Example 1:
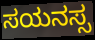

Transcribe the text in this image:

ಸಯನಸ್ಸ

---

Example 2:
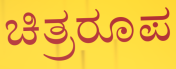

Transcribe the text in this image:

ಚಿತ್ರರೂಪ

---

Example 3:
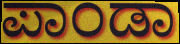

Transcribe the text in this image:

ಪಾಂಡಾ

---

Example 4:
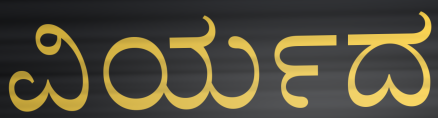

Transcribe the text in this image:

ವಿರ್ಯದ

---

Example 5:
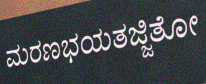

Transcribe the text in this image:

ಮರಣಭಯತಜ್ಜಿತೋ